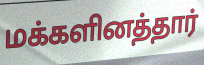
மக்களினத்தார்